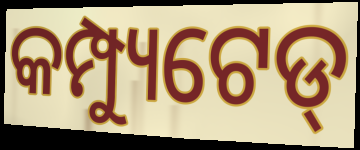
କମ୍ପ୍ୟୁଟେଡ୍